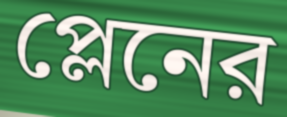
প্লেনের